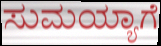
ಸುಮಯ್ಯಾಗೆ